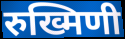
रुख्मिणी